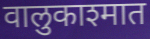
वालुकाश्मात